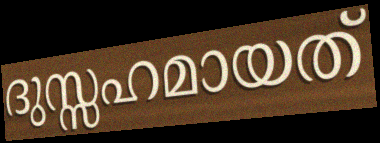
ദുസ്സഹമായത്